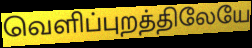
வெளிப்புறத்திலேயே